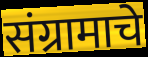
संग्रामाचे